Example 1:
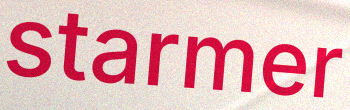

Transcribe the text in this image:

starmer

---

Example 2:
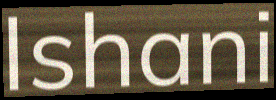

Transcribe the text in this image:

Ishani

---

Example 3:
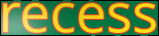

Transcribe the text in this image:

recess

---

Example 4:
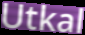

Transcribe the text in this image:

Utkal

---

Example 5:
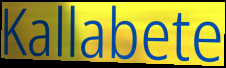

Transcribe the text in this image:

Kallabete